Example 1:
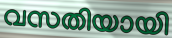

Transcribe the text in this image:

വസതിയായി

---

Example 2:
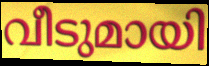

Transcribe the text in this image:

വീടുമായി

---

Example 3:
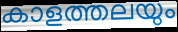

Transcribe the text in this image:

കാളത്തലയും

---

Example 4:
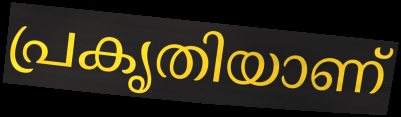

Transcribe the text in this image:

പ്രകൃതിയാണ്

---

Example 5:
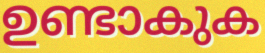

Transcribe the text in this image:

ഉണ്ടാകുക